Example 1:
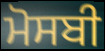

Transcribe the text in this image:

ਮੋਸਬੀ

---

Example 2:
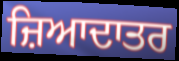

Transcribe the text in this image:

ਜ਼ਿਆਦਾਤਰ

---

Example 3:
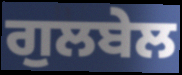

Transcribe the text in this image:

ਗੁਲਬੇਲ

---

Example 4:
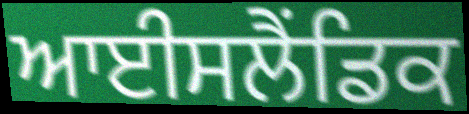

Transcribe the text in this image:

ਆਈਸਲੈਂਡਿਕ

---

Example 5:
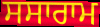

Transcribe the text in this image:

ਸਸਾਰਾਮ